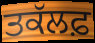
ਤਕੱਲਫ਼